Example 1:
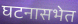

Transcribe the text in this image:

घटनासभेत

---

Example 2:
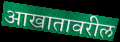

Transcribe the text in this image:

आखातावरील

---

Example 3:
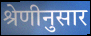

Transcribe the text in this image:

श्रेणीनुसार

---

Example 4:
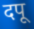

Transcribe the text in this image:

दपू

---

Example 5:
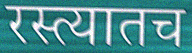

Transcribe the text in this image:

रस्त्यातच